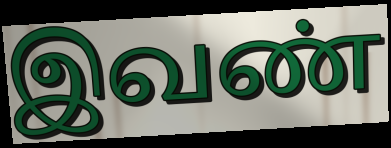
இவண்